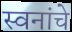
स्वनांचे